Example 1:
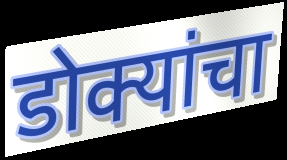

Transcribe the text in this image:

डोक्यांचा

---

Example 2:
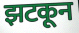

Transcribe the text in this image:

झटकून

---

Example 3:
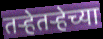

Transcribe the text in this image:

तर्‍हेतर्‍हेच्या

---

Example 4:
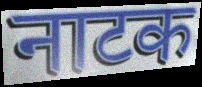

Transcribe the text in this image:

नाटक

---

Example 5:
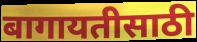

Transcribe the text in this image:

बागायतीसाठी